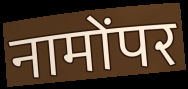
नामोंपर